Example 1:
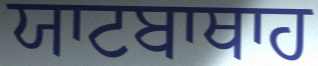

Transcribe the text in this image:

ਯਾਟਬਾਥਾਹ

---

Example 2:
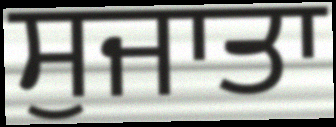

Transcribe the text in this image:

ਸੁਜਾਤਾ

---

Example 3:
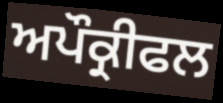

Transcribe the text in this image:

ਅਪੌਕ੍ਰੀਫਲ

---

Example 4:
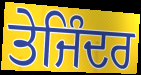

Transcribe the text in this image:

ਤੇਜਿੰਦਰ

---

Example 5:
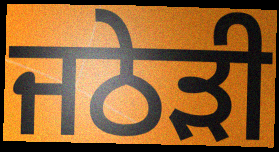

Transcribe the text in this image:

ਜਠੇੜੀ